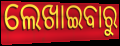
ଲେଖାଇବାରୁ